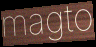
magto